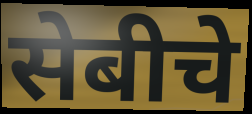
सेबीचे